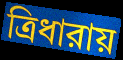
ত্রিধারায়